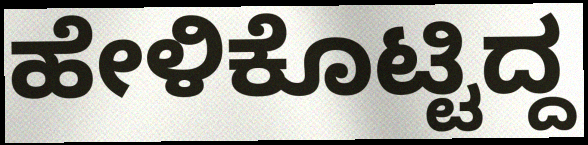
ಹೇಳಿಕೊಟ್ಟಿದ್ದ